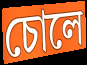
চোলে